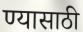
ण्यासाठी